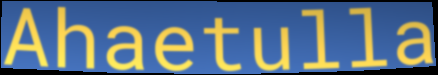
Ahaetulla